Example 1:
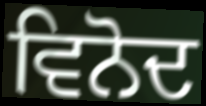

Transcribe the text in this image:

ਵਿਨੋਦ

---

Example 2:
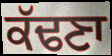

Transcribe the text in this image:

ਕੱਢਣਾ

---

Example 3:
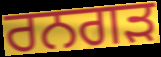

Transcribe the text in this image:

ਰਨਗੜ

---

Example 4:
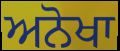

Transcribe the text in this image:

ਅਨੋਖਾ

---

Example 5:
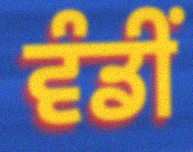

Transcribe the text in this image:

ਵੰਡੀਂ